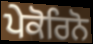
ਪੇਕੋਰਿਨੋ